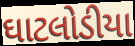
ઘાટલોડીયા